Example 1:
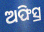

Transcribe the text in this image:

ଅଫିସ୍ର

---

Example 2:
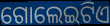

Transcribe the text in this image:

ଗୋଲେଇଟିଏ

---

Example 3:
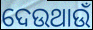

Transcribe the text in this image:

ଦେଉଥାଉଁ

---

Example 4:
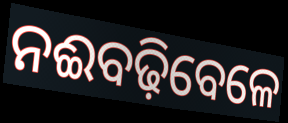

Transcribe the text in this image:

ନଈବଢ଼ିବେଳେ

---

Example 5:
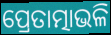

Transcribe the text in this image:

ପ୍ରେତାତ୍ମାଭଳି